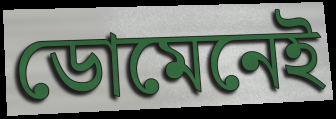
ডোমেনেই